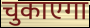
चुकाएगा